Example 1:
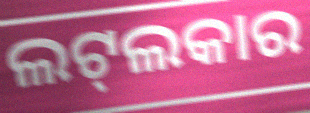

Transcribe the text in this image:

ଲଟ୍‌ଲକାର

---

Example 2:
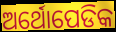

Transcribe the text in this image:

ଅର୍ଥୋପେଡିକ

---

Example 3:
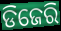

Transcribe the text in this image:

ଡିଜେରି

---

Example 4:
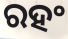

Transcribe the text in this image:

ରହଂ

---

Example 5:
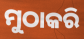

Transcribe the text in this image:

ମୁଠାକରି